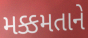
મક્કમતાને